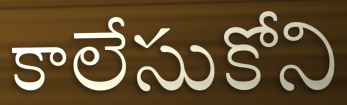
కాలేసుకోని